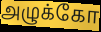
அழுக்கோ